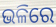
ଭଳିରେ